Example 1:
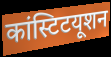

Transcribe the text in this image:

कांस्टिटयूशन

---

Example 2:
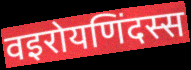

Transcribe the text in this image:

वइरोयणिंदस्स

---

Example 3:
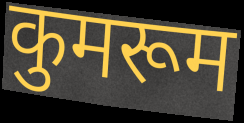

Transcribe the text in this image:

कुमरूम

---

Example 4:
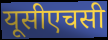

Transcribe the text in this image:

यूसीएचसी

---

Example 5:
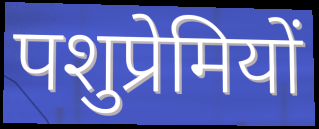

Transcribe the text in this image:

पशुप्रेमियों